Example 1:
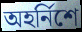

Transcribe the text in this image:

অহৰ্নিশে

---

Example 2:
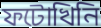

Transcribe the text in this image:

ফটোখিনি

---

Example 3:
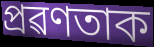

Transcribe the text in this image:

প্ৰৱণতাক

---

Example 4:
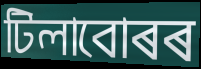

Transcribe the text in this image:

টিলাবোৰৰ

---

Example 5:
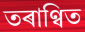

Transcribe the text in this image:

তৰাণ্বিত